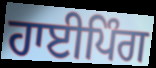
ਹਾਈਪਿੰਗ